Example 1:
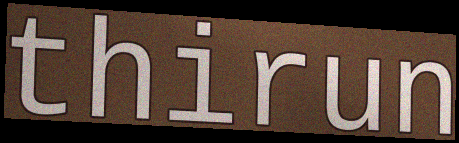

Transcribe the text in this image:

thirun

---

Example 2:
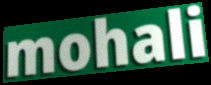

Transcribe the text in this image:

mohali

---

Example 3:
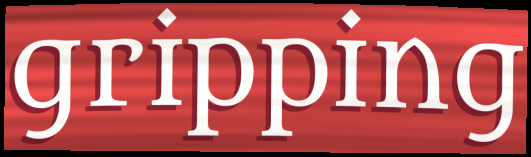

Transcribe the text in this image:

gripping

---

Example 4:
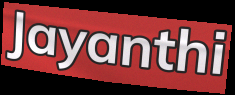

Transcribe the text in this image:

Jayanthi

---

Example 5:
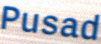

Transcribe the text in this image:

Pusad